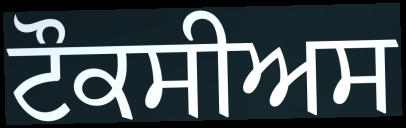
ਟੌਕਸੀਅਸ